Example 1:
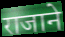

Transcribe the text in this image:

राजाने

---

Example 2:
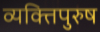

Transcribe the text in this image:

व्यक्तिपुरुष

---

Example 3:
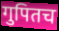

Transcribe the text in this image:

गुपितच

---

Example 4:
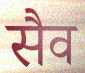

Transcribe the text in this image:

सैव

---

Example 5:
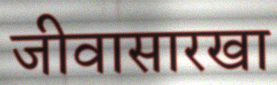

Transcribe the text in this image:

जीवासारखा